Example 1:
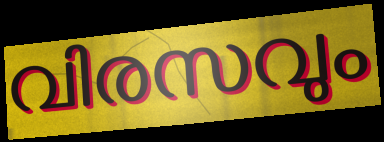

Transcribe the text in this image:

വിരസവും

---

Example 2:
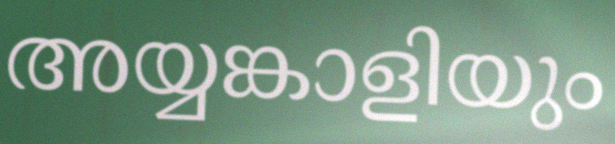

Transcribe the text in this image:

അയ്യങ്കാളിയും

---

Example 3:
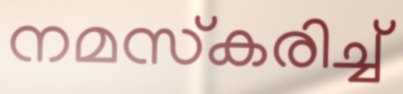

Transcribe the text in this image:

നമസ്‌കരിച്ച്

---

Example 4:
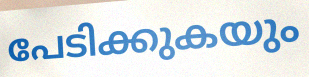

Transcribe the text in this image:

പേടിക്കുകയും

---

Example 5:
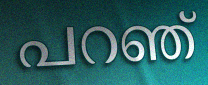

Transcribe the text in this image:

പറഞ്